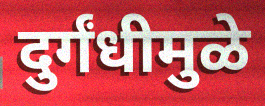
दुर्गंधीमुळे